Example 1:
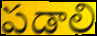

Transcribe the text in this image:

పడాలి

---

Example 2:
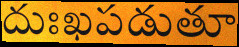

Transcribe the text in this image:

దుఃఖపడుతూ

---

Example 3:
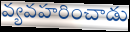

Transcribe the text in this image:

వ్యవహరించాడు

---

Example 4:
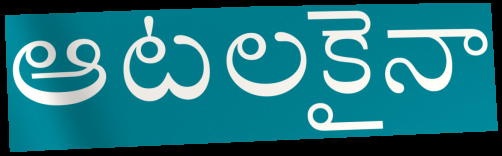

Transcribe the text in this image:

ఆటలకైనా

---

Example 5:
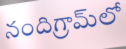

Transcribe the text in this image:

నందిగ్రామ్‌లో